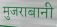
मुजराबानी